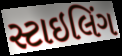
સ્ટાઇલિંગ